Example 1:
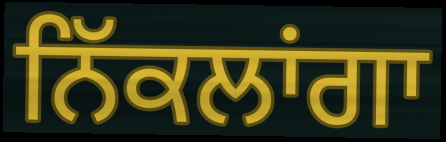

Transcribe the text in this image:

ਨਿੱਕਲਾਂਗਾ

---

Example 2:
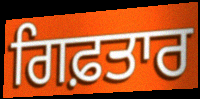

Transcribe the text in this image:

ਗਿਫ਼ਤਾਰ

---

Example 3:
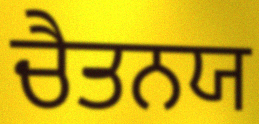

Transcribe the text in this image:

ਚੈਤਨਯ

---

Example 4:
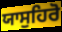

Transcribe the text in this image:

ਯਾਸੁਹਿਰੋ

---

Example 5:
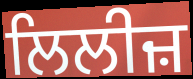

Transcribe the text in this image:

ਲਿਲੀਜ਼